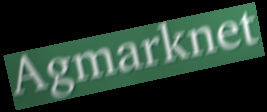
Agmarknet